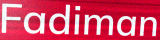
Fadiman